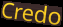
Credo